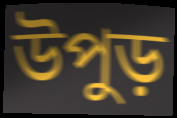
উপুড়